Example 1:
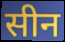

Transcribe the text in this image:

सीन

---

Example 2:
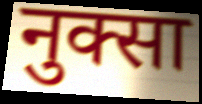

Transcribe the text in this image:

नुक्सा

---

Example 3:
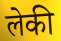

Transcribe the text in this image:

लेकी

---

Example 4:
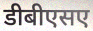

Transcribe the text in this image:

डीबीएसए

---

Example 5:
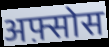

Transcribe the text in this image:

अफ़्सोस